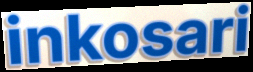
inkosari